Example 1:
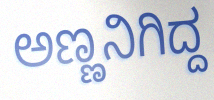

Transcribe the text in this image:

ಅಣ್ಣನಿಗಿದ್ದ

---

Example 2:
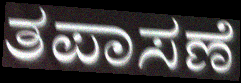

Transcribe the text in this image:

ತಪಾಸಣೆ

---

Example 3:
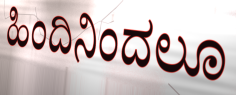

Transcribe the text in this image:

ಹಿಂದಿನಿಂದಲೂ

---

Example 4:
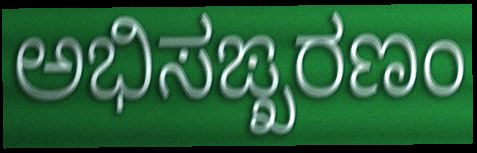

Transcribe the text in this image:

ಅಭಿಸಙ್ಖರಣಂ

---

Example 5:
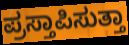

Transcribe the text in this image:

ಪ್ರಸ್ತಾಪಿಸುತ್ತಾ